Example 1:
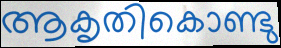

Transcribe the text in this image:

ആകൃതികൊണ്ടു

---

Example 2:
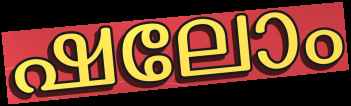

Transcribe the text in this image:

ഷലോം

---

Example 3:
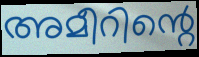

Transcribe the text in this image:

അമീറിന്റെ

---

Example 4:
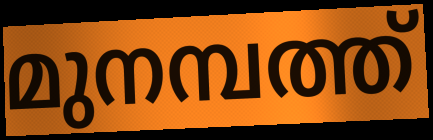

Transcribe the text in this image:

മുനമ്പത്ത്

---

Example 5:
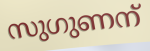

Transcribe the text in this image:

സുഗുണന്